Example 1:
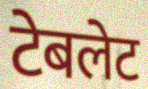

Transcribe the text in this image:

टेबलेट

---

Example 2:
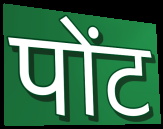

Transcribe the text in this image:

पोंट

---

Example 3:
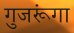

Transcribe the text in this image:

गुजरूंगा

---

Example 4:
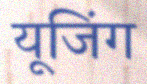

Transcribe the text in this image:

यूजिंग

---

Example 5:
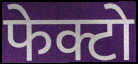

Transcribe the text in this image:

फेक्टो